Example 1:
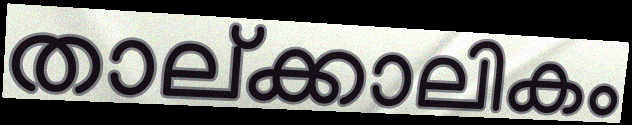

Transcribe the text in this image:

താല്ക്കാലികം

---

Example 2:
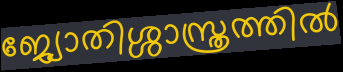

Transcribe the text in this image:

ജ്യോതിശ്ശാസ്ത്രത്തിൽ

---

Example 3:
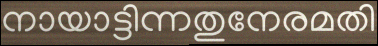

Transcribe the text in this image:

നായാട്ടിന്നതുനേരമതി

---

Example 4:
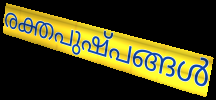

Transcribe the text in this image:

രക്തപുഷ്പങ്ങൾ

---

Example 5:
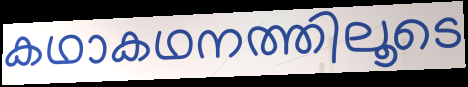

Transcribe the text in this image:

കഥാകഥനത്തിലൂടെ